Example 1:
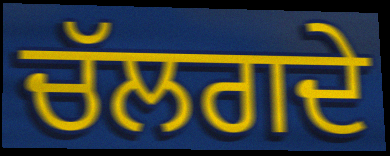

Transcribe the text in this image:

ਚੱਲਗਦੇ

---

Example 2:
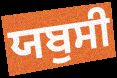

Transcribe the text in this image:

ਯਬੁਸੀ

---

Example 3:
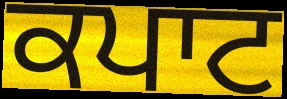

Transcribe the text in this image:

ਕਪਾਟ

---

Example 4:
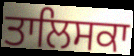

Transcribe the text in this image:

ਤਾਲਿਸਕਾ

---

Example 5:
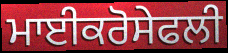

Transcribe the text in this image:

ਮਾਈਕਰੋਸੇਫਲੀ